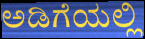
ಅಡಿಗೆಯಲ್ಲಿ